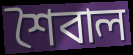
শৈবাল